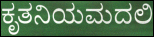
ಕೃತನಿಯಮದಲಿ